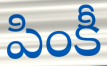
పింకీ